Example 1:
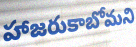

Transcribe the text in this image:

హాజరుకాబోమని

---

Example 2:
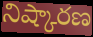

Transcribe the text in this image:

నిష్కారణ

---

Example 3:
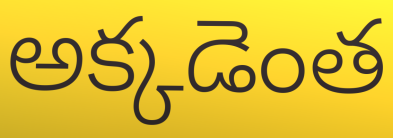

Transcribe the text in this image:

అక్కడెంత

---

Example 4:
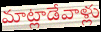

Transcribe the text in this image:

మాట్లాడేవాళ్లు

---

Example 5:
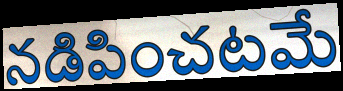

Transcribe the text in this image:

నడిపించటమే